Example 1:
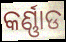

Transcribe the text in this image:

କର୍ଣ୍ଣାଡ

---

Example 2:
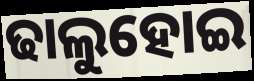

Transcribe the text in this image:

ଢାଲୁହୋଇ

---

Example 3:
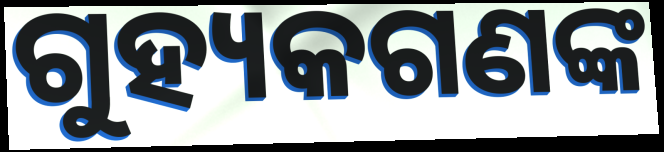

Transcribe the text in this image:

ଗୁହ୍ୟକଗଣଙ୍କ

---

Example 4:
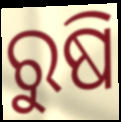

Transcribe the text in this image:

ରୁଷି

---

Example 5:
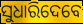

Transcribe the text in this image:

ସୁଧାରିଦେବେ